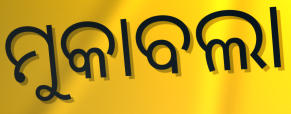
ମୁକାବଲା